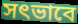
সৎভাবে